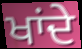
ਖਾਂਦੇ